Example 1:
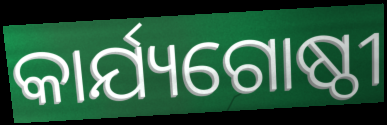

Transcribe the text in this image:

କାର୍ଯ୍ୟଗୋଷ୍ଠୀ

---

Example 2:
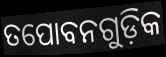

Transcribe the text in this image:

ତପୋବନଗୁଡ଼ିକ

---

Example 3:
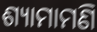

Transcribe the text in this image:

ଶ୍ୟାମାମଣି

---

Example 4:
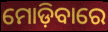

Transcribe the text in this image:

ମୋଡ଼ିବାରେ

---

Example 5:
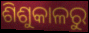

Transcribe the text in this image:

ଶିଶୁକାଳରୁ